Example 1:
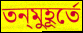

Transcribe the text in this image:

তন্‌মুহূর্তে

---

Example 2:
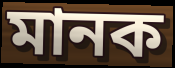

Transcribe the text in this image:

মানক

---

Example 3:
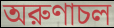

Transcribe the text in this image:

অরুণাচল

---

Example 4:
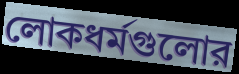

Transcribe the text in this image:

লোকধর্মগুলোর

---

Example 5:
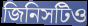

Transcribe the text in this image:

জিনিসটিও